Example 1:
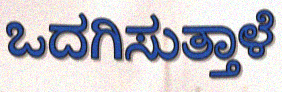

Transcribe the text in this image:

ಒದಗಿಸುತ್ತಾಳೆ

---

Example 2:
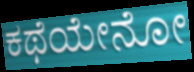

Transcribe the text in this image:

ಕಥೆಯೇನೋ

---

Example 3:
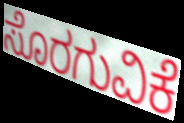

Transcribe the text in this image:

ಸೊರಗುವಿಕೆ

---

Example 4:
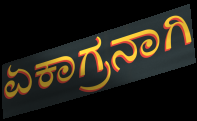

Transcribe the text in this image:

ಏಕಾಗ್ರನಾಗಿ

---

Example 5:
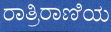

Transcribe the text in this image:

ರಾತ್ರಿರಾಣಿಯ